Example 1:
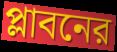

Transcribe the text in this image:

প্লাবনের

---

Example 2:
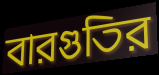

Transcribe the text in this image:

বারগুতির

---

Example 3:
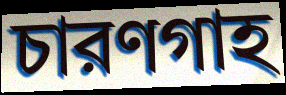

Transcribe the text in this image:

চারণগাহ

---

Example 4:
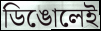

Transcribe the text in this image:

ডিঙোলেই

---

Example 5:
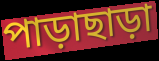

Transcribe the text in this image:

পাড়াছাড়া